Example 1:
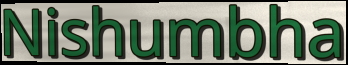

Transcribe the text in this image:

Nishumbha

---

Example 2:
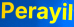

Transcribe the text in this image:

Perayil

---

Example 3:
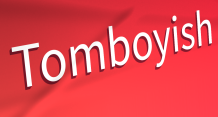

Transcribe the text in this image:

Tomboyish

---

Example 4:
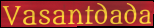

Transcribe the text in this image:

Vasantdada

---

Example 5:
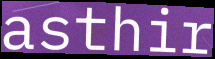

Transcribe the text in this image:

asthir